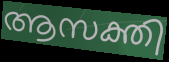
ആസക്തി